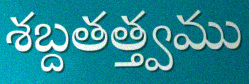
శబ్దతత్త్వము